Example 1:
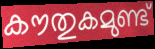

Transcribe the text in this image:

കൗതുകമുണ്ട്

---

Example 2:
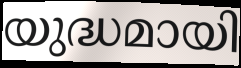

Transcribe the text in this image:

യുദ്ധമായി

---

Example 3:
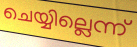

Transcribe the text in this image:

ചെയ്യില്ലെന്ന്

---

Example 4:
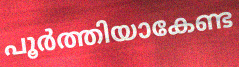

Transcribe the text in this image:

പൂർത്തിയാകേണ്ട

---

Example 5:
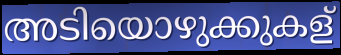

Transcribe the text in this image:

അടിയൊഴുക്കുകള്